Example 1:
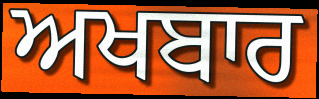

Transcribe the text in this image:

ਅਖਬਾਰ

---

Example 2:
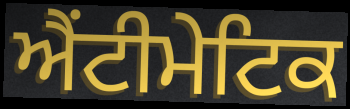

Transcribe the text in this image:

ਐਂਟੀਮੇਟਿਕ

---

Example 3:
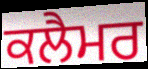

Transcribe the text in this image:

ਕਲੈਮਰ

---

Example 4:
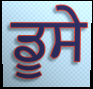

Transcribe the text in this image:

ਡੂਸੇ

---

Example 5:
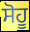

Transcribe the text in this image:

ਸੋਹੂ